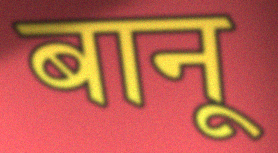
बानू